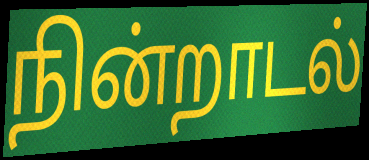
நின்றாடல்